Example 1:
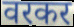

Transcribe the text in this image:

वरकर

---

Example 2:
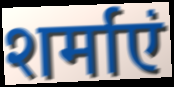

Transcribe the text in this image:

शर्माएं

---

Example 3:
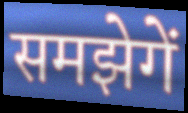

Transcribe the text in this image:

समझेगें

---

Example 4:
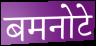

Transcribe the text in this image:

बमनोटे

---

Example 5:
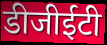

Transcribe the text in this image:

डीजीईटी